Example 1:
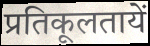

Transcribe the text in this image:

प्रतिकूलतायें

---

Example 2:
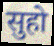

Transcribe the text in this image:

सुहो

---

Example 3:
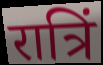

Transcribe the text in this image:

रात्रिं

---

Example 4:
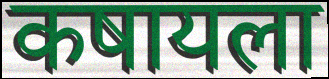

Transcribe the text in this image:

कषायला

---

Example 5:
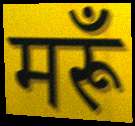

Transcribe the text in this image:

मरूँ